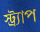
স্ট্র্যাপ